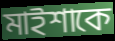
মাইশাকে